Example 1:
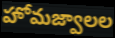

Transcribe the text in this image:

హోమజ్వాలల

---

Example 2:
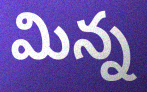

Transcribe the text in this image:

మిన్న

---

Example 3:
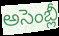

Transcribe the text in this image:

అసెంబ్లీ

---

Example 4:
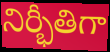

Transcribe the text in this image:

నిర్భీతిగా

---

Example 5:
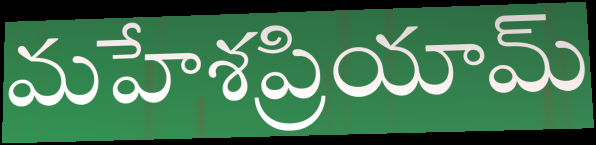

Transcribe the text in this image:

మహేశప్రియామ్